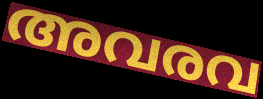
അവരവ